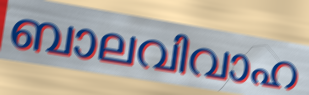
ബാലവിവാഹ